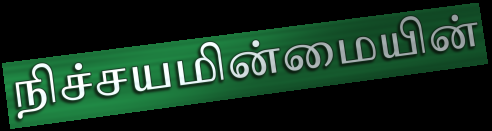
நிச்சயமின்மையின்